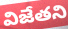
విజేతని